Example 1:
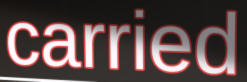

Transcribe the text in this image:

carried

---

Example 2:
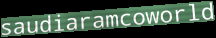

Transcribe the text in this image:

saudiaramcoworld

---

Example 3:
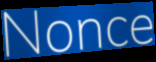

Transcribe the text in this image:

Nonce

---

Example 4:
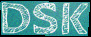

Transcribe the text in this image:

DSK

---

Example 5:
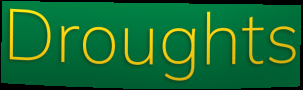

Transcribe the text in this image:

Droughts